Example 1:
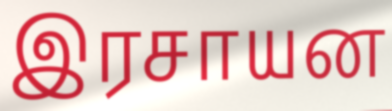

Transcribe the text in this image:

இரசாயன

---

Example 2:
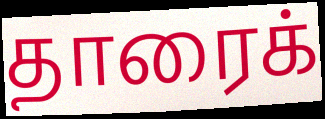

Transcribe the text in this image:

தாரைக்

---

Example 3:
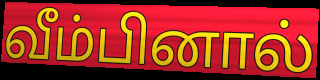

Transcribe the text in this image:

வீம்பினால்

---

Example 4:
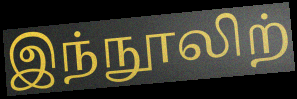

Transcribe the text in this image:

இந்நூலிற்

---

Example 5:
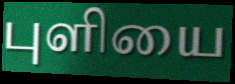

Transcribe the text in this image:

புளியை